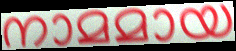
നാമമായ